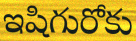
ఇషిగురోకు